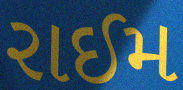
રાઈમ